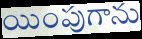
యింపుగాను